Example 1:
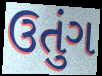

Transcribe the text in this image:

ઉતુંગ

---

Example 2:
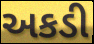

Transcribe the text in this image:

અકડી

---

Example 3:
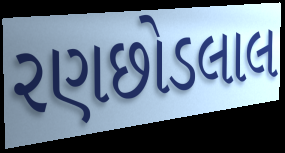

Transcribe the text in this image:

રણછોડલાલ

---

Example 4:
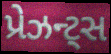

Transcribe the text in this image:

પ્રેઝન્ટ્સ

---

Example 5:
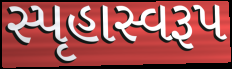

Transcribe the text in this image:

સ્પૃહાસ્વરૂપ